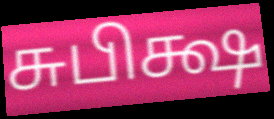
சுபிக்ஷ